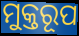
ମୁକ୍ତରୂପ